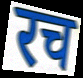
रच